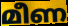
മീണ